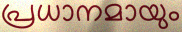
പ്രധാനമായും